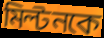
মিল্টনকে